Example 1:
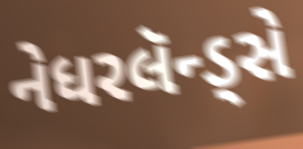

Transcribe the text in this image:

નેધરલૅન્ડ્સે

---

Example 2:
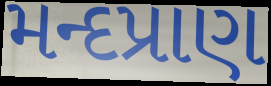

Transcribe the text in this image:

મન્દપ્રાણ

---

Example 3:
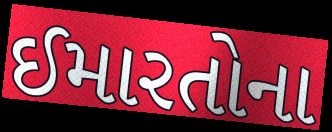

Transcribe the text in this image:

ઈમારતોના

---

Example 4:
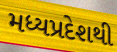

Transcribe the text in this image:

મધ્યપ્રદેશથી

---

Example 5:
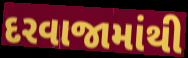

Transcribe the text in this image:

દરવાજામાંથી